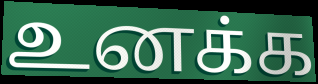
உனக்க